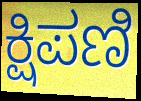
ಕ್ಷಿಪಣಿ